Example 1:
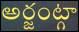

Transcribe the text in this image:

అర్జంట్గా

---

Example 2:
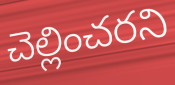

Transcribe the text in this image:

చెల్లించరని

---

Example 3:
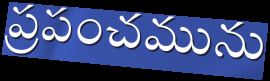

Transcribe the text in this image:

ప్రపంచమును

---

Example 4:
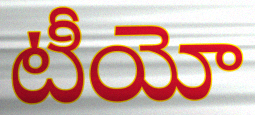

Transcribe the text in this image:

టీయో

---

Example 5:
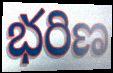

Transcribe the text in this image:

భరిణ